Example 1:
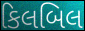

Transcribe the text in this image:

કિલબિલ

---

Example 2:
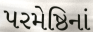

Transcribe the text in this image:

પરમેષ્ઠિનાં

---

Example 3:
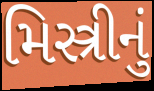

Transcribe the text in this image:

મિસ્ત્રીનું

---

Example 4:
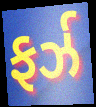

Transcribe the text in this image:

ફર્ઝ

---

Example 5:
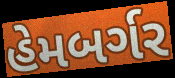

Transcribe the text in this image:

હેમબર્ગર